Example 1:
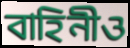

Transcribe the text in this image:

বাহিনীও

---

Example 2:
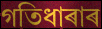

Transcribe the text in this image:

গতিধাৰাৰ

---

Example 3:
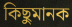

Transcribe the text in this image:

কিছুমানক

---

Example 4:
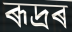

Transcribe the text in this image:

ৰূদ্ৰৰ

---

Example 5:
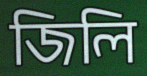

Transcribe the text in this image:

জিলি